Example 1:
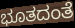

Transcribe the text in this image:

ಭೂತದಂತೆ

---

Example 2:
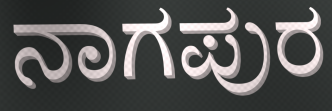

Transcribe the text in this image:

ನಾಗಪುರ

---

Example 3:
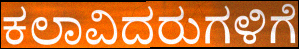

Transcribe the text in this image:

ಕಲಾವಿದರುಗಳಿಗೆ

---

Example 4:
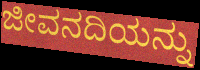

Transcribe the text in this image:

ಜೀವನದಿಯನ್ನು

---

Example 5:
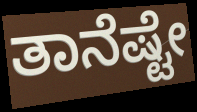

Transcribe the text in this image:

ತಾನೆಷ್ಟೇ